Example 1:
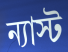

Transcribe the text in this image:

ন্যাস্ট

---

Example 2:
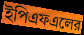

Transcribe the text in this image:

ইপিএফএলের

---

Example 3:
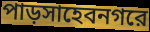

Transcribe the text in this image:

পাড়সাহেবনগরে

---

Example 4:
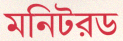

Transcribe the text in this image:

মনিটরড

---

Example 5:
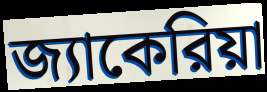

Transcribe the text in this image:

জ্যাকেরিয়া